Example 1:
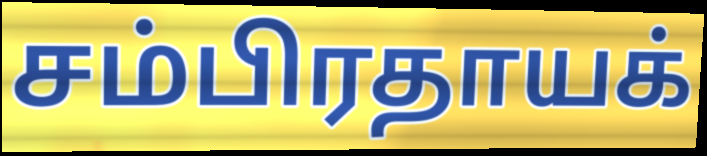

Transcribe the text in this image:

சம்பிரதாயக்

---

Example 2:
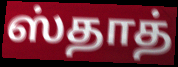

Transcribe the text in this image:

ஸ்தாத்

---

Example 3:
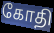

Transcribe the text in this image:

கோதி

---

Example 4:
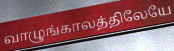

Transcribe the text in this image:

வாழுங்காலத்திலேயே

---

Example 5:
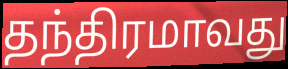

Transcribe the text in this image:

தந்திரமாவது